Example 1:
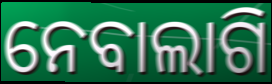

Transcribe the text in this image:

ନେବାଲାଗି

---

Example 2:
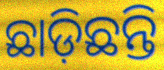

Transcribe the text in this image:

ଛାଡ଼ିଛନ୍ତି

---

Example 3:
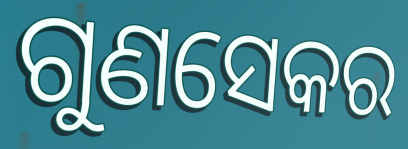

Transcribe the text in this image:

ଗୁଣସେକର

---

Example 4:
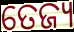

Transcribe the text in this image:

ତେଜ୍ୟ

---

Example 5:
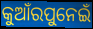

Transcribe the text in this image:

କୁଆଁରପୁନେଇଁ